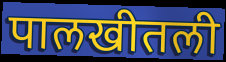
पालखीतली